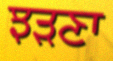
ਝੜਣਾ